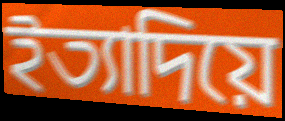
ইত্যাদিয়ে